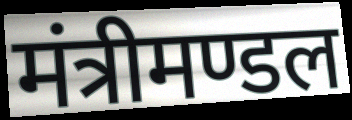
मंत्रीमण्डल